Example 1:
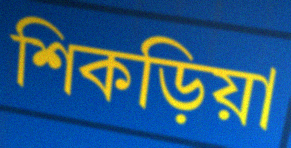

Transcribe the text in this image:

শিকড়িয়া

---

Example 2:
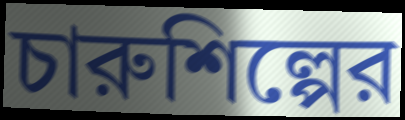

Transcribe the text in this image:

চারুশিল্পের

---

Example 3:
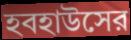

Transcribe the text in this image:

হবহাউসের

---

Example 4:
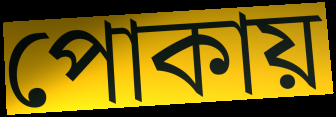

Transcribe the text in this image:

পোকায়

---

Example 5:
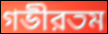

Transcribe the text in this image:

গভীরতম